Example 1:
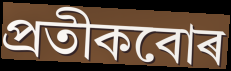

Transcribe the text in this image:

প্ৰতীকবোৰ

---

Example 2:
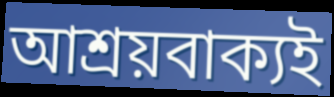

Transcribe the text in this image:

আশ্ৰয়বাক্যই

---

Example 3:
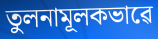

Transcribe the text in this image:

তুলনামূলকভাৱে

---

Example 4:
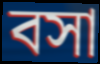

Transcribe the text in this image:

বসা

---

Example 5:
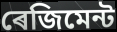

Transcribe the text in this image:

ৰেজিমেন্ট